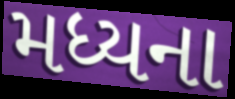
મધ્યના